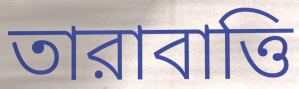
তারাবাত্তি